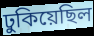
ঢুকিয়েছিল